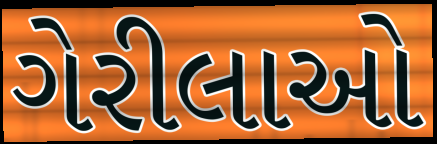
ગેરીલાઓ